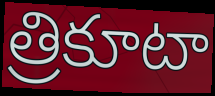
త్రికూటా